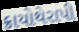
ક્રાયોથેરાપી